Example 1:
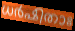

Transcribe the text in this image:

ധർഷിതാഃ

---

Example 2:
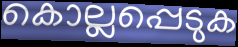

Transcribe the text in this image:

കൊല്ലപ്പെടുക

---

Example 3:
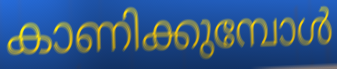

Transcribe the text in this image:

കാണിക്കുമ്പോൾ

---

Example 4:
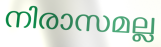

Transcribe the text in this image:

നിരാസമല്ല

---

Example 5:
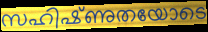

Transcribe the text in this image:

സഹിഷ്‌ണുതയോടെ